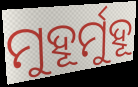
ମୁହୂର୍ମୁହୂ